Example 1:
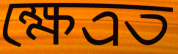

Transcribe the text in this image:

ক্ষেত্ৰত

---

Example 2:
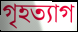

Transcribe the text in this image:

গৃহত্যাগ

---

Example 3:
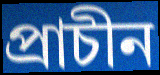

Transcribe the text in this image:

প্ৰাচীন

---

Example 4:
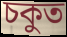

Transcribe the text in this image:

চকুত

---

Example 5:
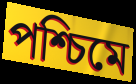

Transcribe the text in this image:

পশ্চিমে